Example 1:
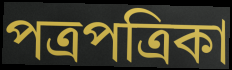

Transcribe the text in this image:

পত্রপত্রিকা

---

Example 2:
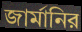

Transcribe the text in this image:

জার্মানির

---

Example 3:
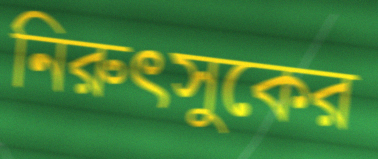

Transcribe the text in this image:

নিরুৎসুকের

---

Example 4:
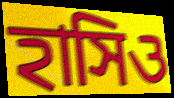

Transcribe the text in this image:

হাসিও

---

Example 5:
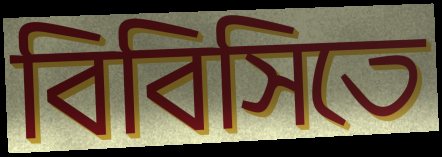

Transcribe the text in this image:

বিবিসিতে